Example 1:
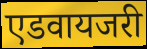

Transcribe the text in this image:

एडवायजरी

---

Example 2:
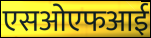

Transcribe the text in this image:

एसओएफआई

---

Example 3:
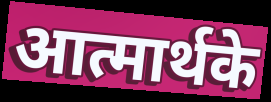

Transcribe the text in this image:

आत्मार्थके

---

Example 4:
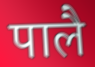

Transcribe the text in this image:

पालै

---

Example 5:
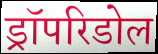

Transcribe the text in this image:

ड्रॉपरिडोल